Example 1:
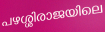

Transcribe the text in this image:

പഴശ്ശിരാജയിലെ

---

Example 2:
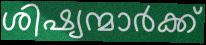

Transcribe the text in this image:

ശിഷ്യന്മാർക്ക്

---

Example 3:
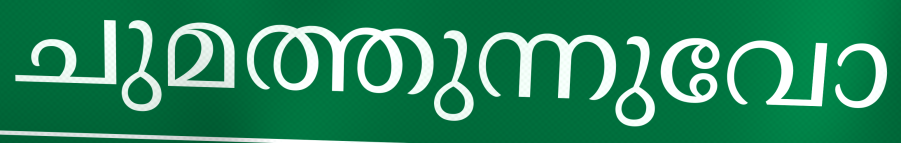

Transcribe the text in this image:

ചുമത്തുന്നുവോ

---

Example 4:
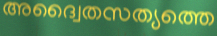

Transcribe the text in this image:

അദ്വൈതസത്യത്തെ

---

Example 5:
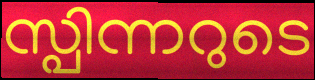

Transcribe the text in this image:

സ്പിന്നറുടെ